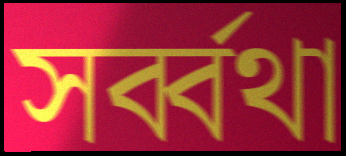
সৰ্ব্বথা